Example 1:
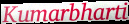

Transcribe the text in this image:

Kumarbharti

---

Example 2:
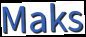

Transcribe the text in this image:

Maks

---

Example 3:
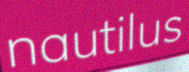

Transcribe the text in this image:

nautilus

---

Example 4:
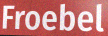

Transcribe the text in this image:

Froebel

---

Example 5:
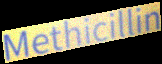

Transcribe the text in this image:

Methicillin